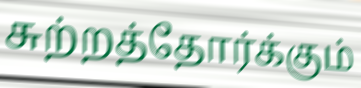
சுற்றத்தோர்க்கும்